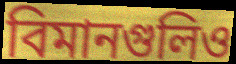
বিমানগুলিও